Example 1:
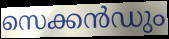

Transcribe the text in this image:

സെക്കൻഡും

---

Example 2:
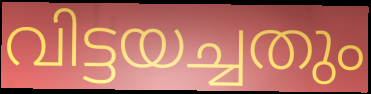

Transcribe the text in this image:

വിട്ടയച്ചതും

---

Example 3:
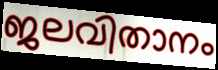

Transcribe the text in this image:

ജലവിതാനം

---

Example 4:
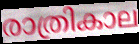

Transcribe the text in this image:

രാത്രികാല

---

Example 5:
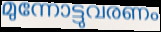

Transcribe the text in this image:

മുന്നോട്ടുവരണം